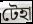
টেহা